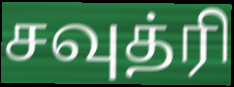
சவுத்ரி